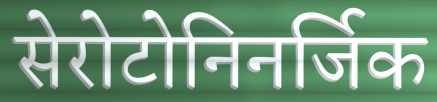
सेरोटोनिनर्जिक